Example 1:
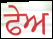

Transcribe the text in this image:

ਫੇਅ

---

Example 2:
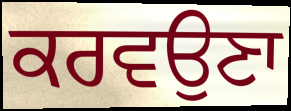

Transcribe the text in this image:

ਕਰਵਉਣਾ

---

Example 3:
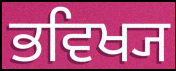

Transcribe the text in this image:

ਭਵਿਖ੍ਯ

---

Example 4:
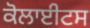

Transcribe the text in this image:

ਕੋਲਾਈਟਸ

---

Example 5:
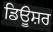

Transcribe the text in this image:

ਡਿਊਸ਼ਰ